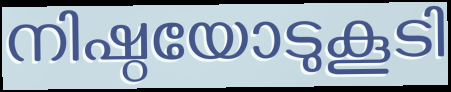
നിഷ്ഠയോടുകൂടി